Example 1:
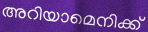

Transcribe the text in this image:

അറിയാമെനിക്ക്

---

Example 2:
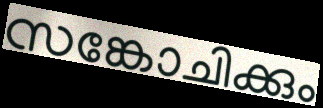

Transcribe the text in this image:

സങ്കോചിക്കും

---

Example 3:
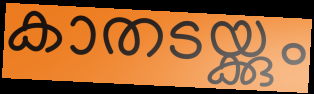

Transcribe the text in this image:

കാതടയ്ക്കും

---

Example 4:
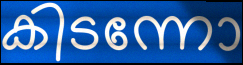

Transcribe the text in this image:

കിടന്നോ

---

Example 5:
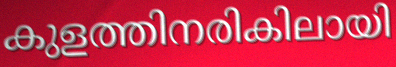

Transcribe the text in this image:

കുളത്തിനരികിലായി